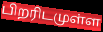
பிறரிடமுள்ள